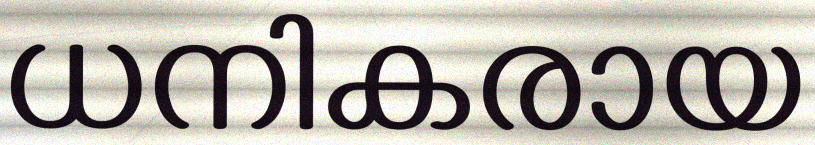
ധനികരായ